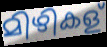
മിഴികള്